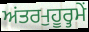
ਅਂਤਰ੍ਮੁਹੂਰ੍ਤਮੇਂ